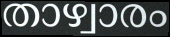
താഴ്വാരം